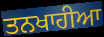
ਤਨਖਾਹੀਆ